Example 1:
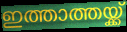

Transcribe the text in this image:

ഇത്താത്തയ്ക്ക്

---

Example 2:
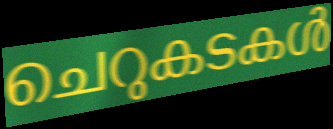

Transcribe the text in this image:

ചെറുകടകൾ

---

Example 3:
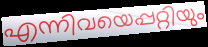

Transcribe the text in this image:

എന്നിവയെപ്പറ്റിയും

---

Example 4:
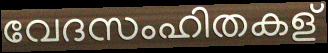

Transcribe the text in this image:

വേദസംഹിതകള്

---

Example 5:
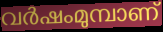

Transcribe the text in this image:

വർഷംമുമ്പാണ്